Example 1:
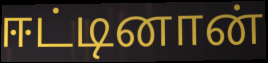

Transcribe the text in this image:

ஈட்டினான்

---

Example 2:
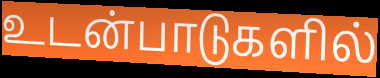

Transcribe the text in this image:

உடன்பாடுகளில்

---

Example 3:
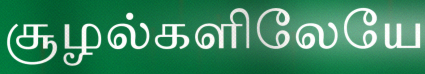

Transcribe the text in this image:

சூழல்களிலேயே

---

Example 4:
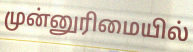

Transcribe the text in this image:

முன்னுரிமையில்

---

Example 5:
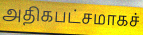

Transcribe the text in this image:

அதிகபட்சமாகச்